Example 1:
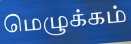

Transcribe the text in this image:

மெழுக்கம்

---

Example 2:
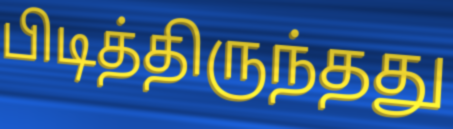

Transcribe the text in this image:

பிடித்திருந்தது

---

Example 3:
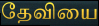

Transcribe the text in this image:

தேவியை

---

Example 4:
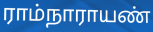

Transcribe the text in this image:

ராம்நாராயண்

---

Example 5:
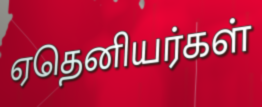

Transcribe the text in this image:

ஏதெனியர்கள்